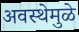
अवस्थेमुळे